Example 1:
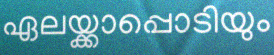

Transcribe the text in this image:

ഏലയ്ക്കാപ്പൊടിയും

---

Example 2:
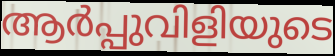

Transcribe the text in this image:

ആർപ്പുവിളിയുടെ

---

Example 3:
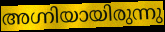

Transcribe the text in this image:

അഗ്നിയായിരുന്നു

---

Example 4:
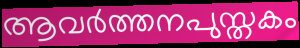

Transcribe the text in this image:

ആവർത്തനപുസ്തകം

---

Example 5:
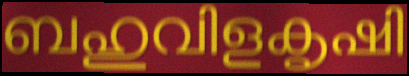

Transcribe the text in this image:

ബഹുവിളകൃഷി